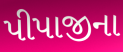
પીપાજીના